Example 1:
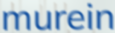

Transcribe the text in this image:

murein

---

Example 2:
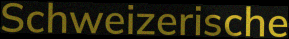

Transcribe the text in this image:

Schweizerische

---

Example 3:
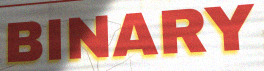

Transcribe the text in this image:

BINARY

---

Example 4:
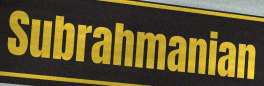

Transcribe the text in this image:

Subrahmanian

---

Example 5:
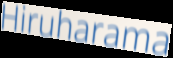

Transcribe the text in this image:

Hiruharama